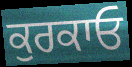
ਕੁਰਕਾਓ